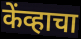
केंव्हाचा